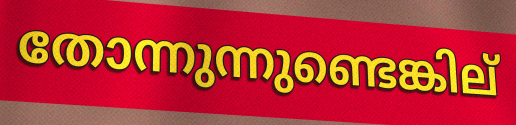
തോന്നുന്നുണ്ടെങ്കില്